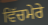
ਵਿੱਚਮੇਰੇ